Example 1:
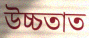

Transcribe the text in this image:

উচ্চতাত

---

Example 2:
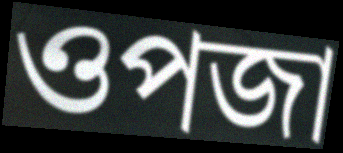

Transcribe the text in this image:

ওপজা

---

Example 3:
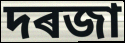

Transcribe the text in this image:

দৰজা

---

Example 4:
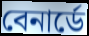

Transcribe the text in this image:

বেনাৰ্ডে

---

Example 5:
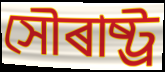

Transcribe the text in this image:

সৌৰাষ্ট্ৰ